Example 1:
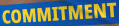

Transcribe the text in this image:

COMMITMENT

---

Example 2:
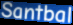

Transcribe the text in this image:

Santbal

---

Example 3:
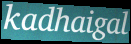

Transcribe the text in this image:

kadhaigal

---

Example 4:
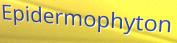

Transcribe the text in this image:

Epidermophyton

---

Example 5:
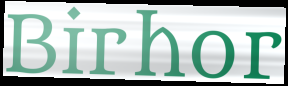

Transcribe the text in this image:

Birhor